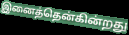
இனைத்தென்கின்றது